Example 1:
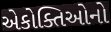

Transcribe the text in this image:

એકોક્તિઓનો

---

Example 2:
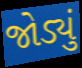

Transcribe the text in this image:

જોડ્યું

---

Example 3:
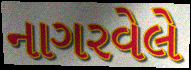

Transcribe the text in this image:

નાગરવેલે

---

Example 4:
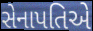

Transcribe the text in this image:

સેનાપતિએ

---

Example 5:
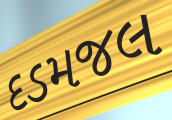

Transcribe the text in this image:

દડમજલ